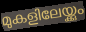
മുകളിലേയ്ക്കും